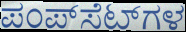
ಪಂಪ್‌ಸೆಟ್‌ಗಳ